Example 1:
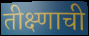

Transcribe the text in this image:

तीक्ष्णाची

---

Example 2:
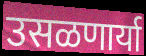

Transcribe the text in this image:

उसळणार्या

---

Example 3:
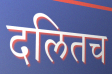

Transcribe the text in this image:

दलितच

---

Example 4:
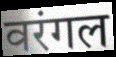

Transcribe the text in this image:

वरंगल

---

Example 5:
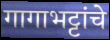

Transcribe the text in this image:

गागाभट्टांचे